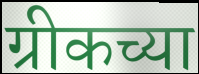
ग्रीकच्या